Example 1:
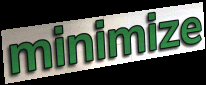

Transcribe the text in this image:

minimize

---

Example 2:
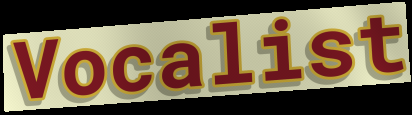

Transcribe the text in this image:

Vocalist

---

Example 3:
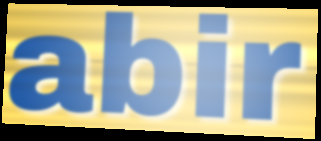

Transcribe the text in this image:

abir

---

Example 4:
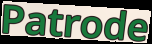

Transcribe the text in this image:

Patrode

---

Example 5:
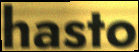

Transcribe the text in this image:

hasto